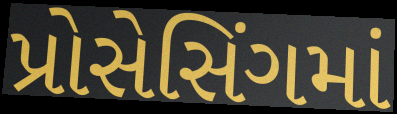
પ્રોસેસિંગમાં